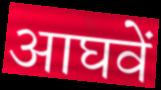
आघवें